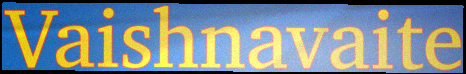
Vaishnavaite